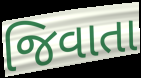
જિવાતા